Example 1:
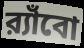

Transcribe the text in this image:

র‍্যাঁবো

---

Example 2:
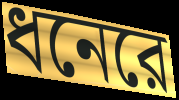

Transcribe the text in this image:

ধনেরে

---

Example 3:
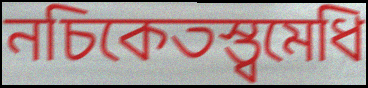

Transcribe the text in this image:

নচিকেতস্ত্বমেধি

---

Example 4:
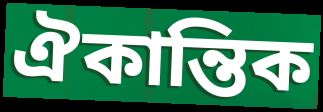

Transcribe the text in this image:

ঐকান্তিক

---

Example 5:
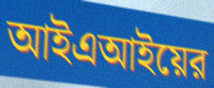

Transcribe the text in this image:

আইএআইয়ের